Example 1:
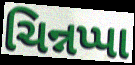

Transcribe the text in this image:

ચિન્નપ્પા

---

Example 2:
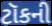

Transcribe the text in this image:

ટૉકની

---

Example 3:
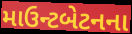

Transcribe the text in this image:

માઉન્ટબેટનના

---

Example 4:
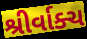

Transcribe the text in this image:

શ્રીર્વાક્ચ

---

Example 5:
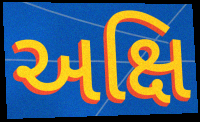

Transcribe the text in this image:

અક્ષિ